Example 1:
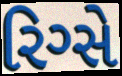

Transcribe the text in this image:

રિગ્સે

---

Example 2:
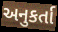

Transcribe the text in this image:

અનુકર્તા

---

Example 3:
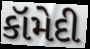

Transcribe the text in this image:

કૉમેદી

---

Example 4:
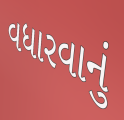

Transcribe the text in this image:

વધારવાનું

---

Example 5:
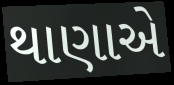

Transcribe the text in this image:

થાણાએ